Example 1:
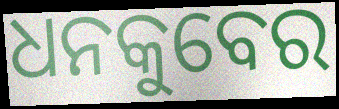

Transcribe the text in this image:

ଧନକୁବେର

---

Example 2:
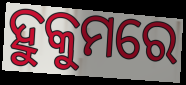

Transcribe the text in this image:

ହୁକୁମରେ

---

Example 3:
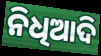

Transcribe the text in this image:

ନିଧିଆଦି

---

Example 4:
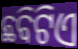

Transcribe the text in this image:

ଛବିଟିଏ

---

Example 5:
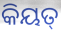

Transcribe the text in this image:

କିୟତ୍